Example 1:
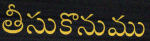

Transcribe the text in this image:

తీసుకొనుము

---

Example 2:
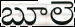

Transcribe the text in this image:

బూలె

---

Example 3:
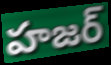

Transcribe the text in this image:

హజర్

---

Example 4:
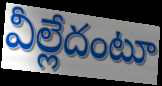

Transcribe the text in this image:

వీల్లేదంటూ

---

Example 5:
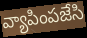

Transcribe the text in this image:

వ్యాపింపజేసి